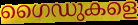
ഗൈഡുകളെ